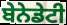
ਬੇਨੇਡੇਟੀ